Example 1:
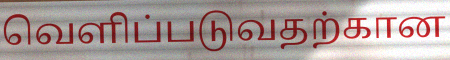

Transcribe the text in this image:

வெளிப்படுவதற்கான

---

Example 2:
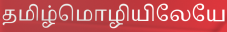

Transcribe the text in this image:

தமிழ்மொழியிலேயே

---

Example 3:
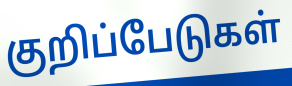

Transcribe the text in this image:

குறிப்பேடுகள்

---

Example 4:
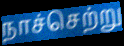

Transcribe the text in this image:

நாச்செற்று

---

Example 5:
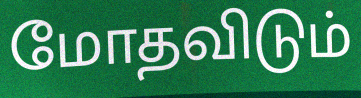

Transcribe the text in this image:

மோதவிடும்